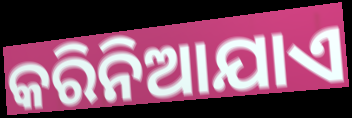
କରିନିଆଯାଏ